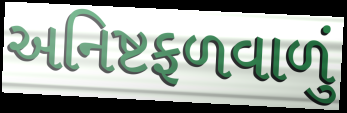
અનિષ્ટફળવાળું